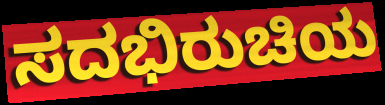
ಸದಭಿರುಚಿಯ